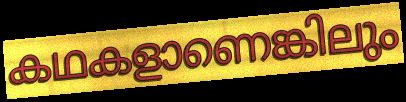
കഥകളാണെങ്കിലും